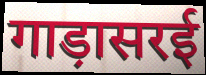
गाड़ासरई